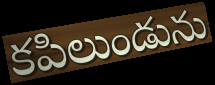
కపిలుండును